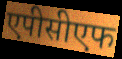
एपीसीएफ